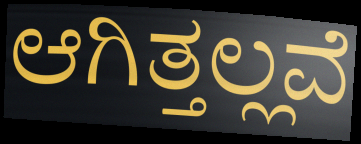
ಆಗಿತ್ತಲ್ಲವೆ